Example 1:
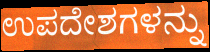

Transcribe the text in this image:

ಉಪದೇಶಗಳನ್ನು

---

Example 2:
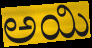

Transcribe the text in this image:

ಅಯಿ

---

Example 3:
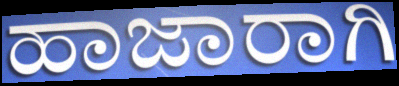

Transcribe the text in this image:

ಹಾಜಾರಾಗಿ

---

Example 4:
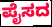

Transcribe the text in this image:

ಪೈಸದ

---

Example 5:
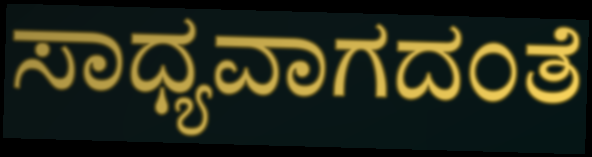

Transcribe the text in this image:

ಸಾಧ್ಯವಾಗದಂತೆ